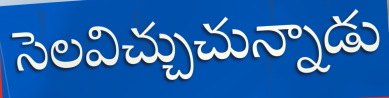
సెలవిచ్చుచున్నాడు